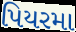
પિયરમા